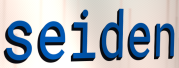
seiden